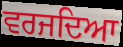
ਵਰਜਦਿਆ